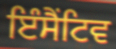
ਇੰਸੈਂਟਿਵ